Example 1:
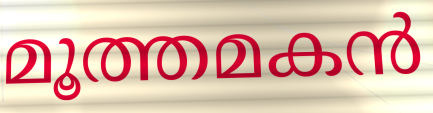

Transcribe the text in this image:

മൂത്തമകൻ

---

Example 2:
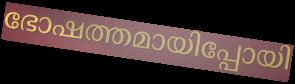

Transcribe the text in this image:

ഭോഷത്തമായിപ്പോയി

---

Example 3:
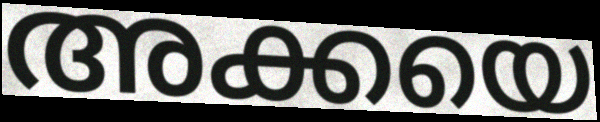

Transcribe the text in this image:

അക്കയെ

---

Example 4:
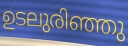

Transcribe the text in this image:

ഉടലുരിഞ്ഞു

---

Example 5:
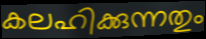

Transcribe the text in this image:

കലഹിക്കുന്നതും